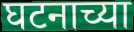
घटनाच्या